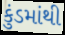
કુંડમાંથી